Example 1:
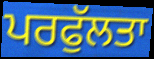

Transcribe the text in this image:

ਪਰਫੁੱਲਤਾ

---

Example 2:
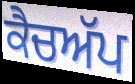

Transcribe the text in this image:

ਕੈਚਅੱਪ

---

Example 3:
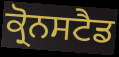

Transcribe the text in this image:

ਕ੍ਰੋਨਸਟੈਡ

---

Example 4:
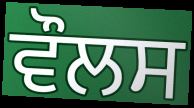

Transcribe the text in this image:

ਵੌਲਸ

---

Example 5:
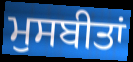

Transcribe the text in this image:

ਮੁਸਬੀਤਾਂ